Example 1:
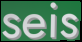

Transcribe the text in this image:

seis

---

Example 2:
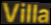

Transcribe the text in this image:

Villa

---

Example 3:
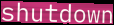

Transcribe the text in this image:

shutdown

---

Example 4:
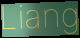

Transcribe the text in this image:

Liang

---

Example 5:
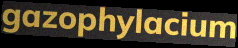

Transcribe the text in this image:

gazophylacium